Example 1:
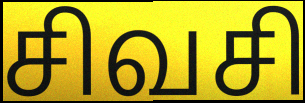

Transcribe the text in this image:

சிவசி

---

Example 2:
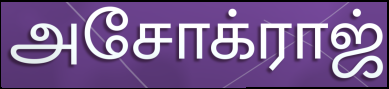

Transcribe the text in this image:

அசோக்ராஜ்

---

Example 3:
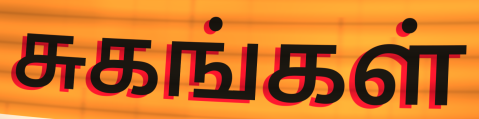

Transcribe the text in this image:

சுகங்கள்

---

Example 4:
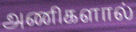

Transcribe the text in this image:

அணிகளால்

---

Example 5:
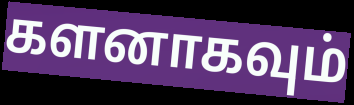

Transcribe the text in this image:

களனாகவும்